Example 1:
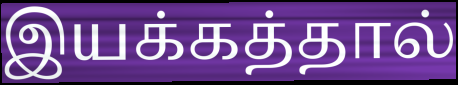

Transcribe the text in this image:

இயக்கத்தால்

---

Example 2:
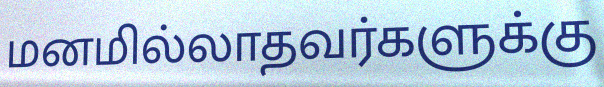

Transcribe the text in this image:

மனமில்லாதவர்களுக்கு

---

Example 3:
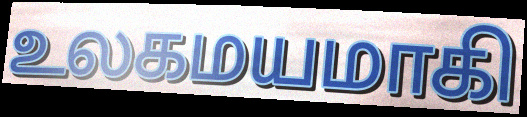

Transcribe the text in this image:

உலகமயமாகி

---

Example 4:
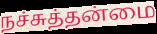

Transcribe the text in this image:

நச்சுத்தன்மை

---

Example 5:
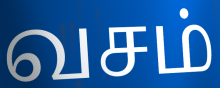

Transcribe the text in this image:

வசம்